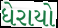
ધેરાયો